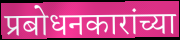
प्रबोधनकारांच्या